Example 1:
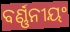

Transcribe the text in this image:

ବର୍ଣ୍ଣନୀୟଂ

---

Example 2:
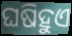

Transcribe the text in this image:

ଘଷିହୁଏ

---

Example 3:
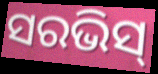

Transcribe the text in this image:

ସରଭିସ୍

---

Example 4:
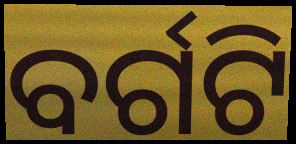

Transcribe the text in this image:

ବର୍ଗଟି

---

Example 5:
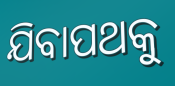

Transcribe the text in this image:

ଯିବାପଥକୁ